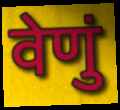
वेणुं